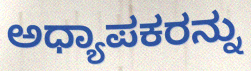
ಅಧ್ಯಾಪಕರನ್ನು